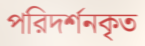
পরিদর্শনকৃত